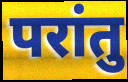
परांतु